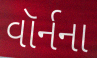
વૉર્નના